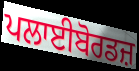
ਪਲਾਈਬੋਰਡਜ਼